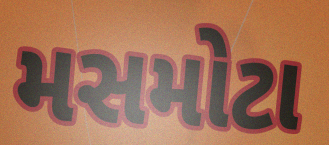
મસમોટા